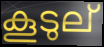
കൂടുല്